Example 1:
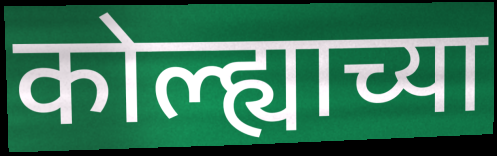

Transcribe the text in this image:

कोल्ह्याच्या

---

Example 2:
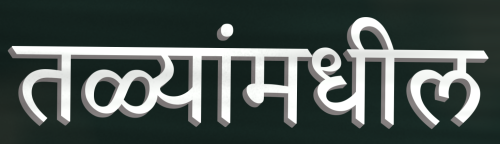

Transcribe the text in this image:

तळ्यांमधील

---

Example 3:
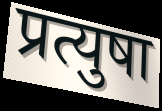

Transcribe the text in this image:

प्रत्युषा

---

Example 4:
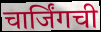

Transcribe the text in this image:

चार्जिंगची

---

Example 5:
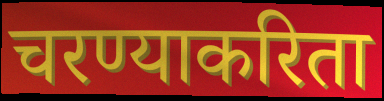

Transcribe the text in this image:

चरण्याकरिता